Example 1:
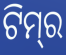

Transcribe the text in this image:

ଟିମ୍‌ର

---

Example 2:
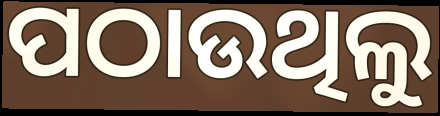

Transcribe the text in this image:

ପଠାଉଥିଲୁ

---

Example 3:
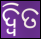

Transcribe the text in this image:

ଦ୍ୱିତ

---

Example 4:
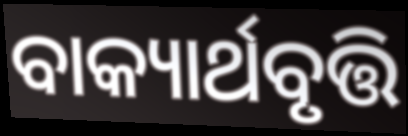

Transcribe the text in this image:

ବାକ୍ୟାର୍ଥବୃତ୍ତି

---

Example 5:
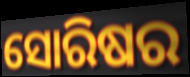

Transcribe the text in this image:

ସୋରିଷର